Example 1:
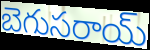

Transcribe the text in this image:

బెగుసరాయ్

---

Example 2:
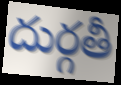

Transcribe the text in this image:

దుర్గతీ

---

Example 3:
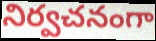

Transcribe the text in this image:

నిర్వచనంగా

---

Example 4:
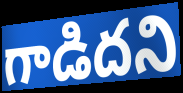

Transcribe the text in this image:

గాడిదని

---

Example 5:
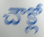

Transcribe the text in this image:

చౌక్లో